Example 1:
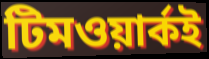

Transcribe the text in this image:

টিমওয়ার্কই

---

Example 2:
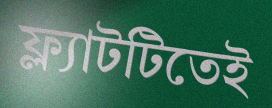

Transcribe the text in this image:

ফ্ল্যাটটিতেই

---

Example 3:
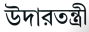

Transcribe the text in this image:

উদারতন্ত্রী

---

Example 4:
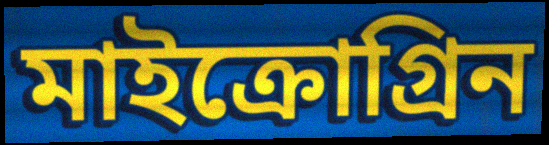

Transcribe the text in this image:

মাইক্রোগ্রিন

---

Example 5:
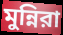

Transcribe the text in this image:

মুন্নিরা